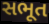
સભૂત